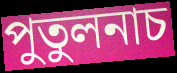
পুতুলনাচ